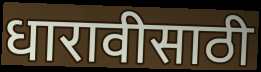
धारावीसाठी